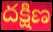
దక్షిణ